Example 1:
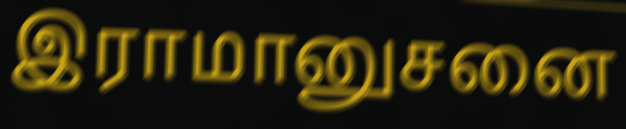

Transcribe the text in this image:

இராமானுசனை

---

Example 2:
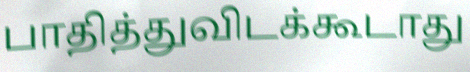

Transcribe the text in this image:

பாதித்துவிடக்கூடாது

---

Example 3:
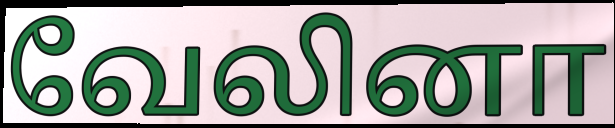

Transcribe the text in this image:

வேலினா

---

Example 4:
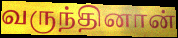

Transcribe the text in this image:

வருந்தினான்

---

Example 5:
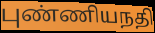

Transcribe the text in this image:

புண்ணியநதி